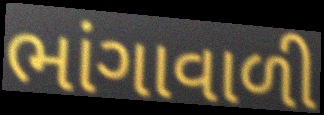
ભાંગાવાળી